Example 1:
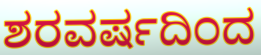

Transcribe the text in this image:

ಶರವರ್ಷದಿಂದ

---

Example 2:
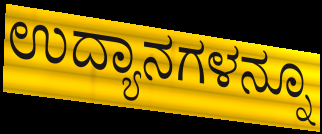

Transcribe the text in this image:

ಉದ್ಯಾನಗಳನ್ನೂ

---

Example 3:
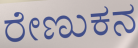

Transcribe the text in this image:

ರೇಣುಕನ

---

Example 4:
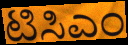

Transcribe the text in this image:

ಟಿಸಿಎಂ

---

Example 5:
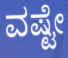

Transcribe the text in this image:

ವಷ್ಟೇ